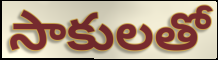
సాకులతో